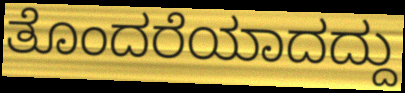
ತೊಂದರೆಯಾದದ್ದು